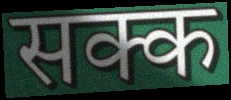
सक्क